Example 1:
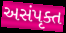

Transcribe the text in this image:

અસંપૃક્ત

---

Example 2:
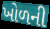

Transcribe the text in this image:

ખોળની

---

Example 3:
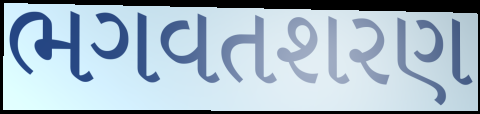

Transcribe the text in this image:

ભગવતશરણ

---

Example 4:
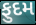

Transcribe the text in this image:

ફુદમ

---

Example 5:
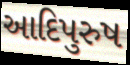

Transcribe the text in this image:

આદિપુરુષ